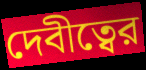
দেবীত্বের